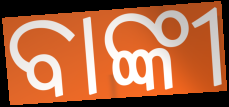
ବାଙ୍କୀ